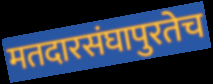
मतदारसंघापुरतेच